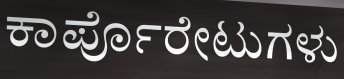
ಕಾರ್ಪೊರೇಟುಗಳು